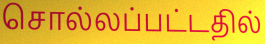
சொல்லப்பட்டதில்